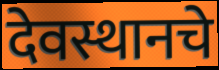
देवस्थानचे